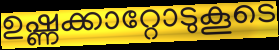
ഉഷ്ണക്കാറ്റോടുകൂടെ